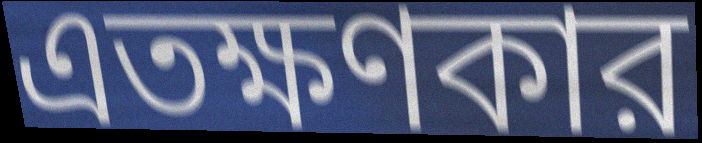
এতক্ষণকার